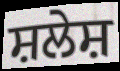
ਸ਼ਲੇਸ਼